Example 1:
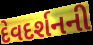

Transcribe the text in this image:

દેવદર્શનની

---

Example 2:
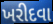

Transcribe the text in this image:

ખરીદવા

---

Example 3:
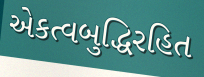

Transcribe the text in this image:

એકત્વબુદ્ધિરહિત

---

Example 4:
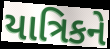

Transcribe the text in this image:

યાત્રિકને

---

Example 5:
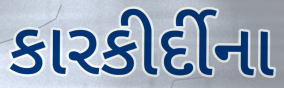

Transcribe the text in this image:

કારકીર્દીના